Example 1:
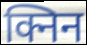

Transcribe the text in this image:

क्निन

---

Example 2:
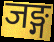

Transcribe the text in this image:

जङ्ग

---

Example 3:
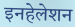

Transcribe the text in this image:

इनहेलेशन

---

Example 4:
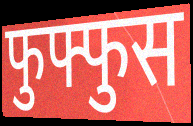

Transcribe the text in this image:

फुफ्फुस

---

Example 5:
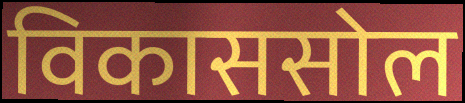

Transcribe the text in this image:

विकाससोल